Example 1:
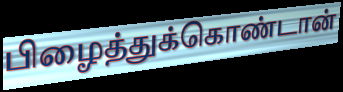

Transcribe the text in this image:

பிழைத்துக்கொண்டான்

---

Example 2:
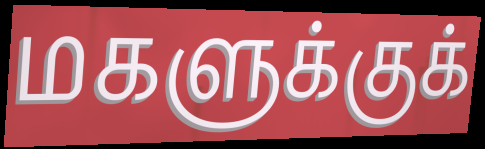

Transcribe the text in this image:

மகளுக்குக்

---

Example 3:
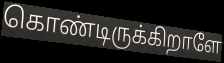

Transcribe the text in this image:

கொண்டிருக்கிறாளே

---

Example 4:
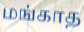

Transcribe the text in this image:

மங்காத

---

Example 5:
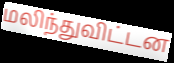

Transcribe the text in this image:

மலிந்துவிட்டன